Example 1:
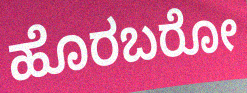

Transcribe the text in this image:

ಹೊರಬರೋ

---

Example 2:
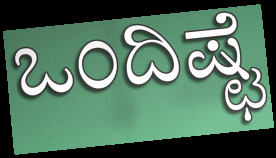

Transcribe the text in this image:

ಒಂದಿಷ್ಟೆ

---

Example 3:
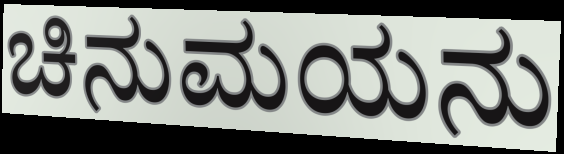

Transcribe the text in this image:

ಚಿನುಮಯನು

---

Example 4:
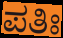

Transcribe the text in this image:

ಪತಿಃ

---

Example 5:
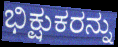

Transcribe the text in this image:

ಭಿಕ್ಷುಕರನ್ನು